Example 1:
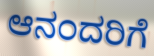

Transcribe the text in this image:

ಆನಂದರಿಗೆ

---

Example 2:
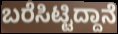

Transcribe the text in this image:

ಬರೆಸಿಟ್ಟಿದ್ದಾನೆ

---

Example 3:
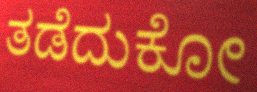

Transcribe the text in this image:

ತಡೆದುಕೋ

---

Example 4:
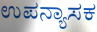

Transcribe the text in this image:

ಉಪನ್ಯಾಸಕ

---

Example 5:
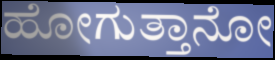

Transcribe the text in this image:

ಹೋಗುತ್ತಾನೋ